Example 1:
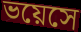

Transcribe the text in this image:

ভয়েসে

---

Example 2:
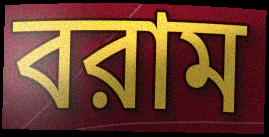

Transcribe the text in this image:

বরাম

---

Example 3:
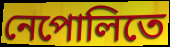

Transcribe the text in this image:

নেপোলিতে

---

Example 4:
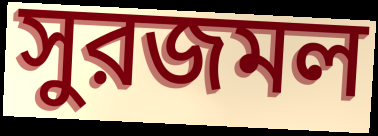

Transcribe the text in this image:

সুরজমল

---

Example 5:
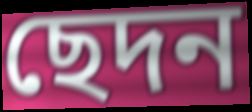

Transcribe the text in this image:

ছেদন